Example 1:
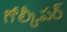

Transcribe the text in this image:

గోల్కీపర్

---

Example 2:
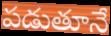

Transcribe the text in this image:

పడుతూనే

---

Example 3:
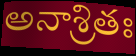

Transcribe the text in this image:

అనాశ్రితః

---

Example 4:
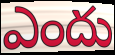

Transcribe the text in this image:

ఎందు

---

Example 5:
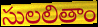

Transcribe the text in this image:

సులలితాం